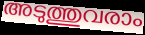
അടുത്തുവരാം